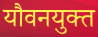
यौवनयुक्त